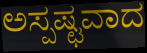
ಅಸ್ಪಷ್ಟವಾದ